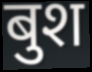
बुश